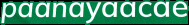
paanayaacae